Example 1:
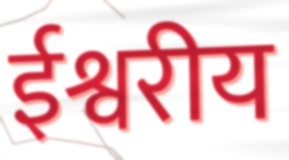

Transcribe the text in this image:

ईश्वरीय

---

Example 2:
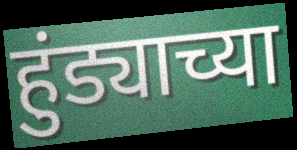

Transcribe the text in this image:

हुंड्याच्या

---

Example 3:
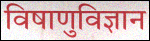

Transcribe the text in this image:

विषाणुविज्ञान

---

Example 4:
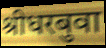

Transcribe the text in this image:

श्रीधरबुवा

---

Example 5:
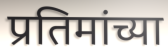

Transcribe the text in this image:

प्रतिमांच्या